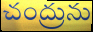
చంద్రును